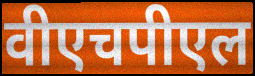
वीएचपीएल